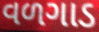
વળગાડ